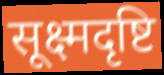
सूक्ष्मदृष्टि